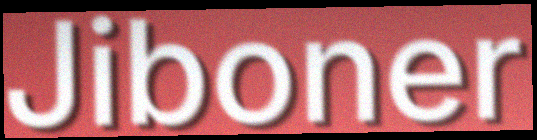
Jiboner